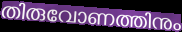
തിരുവോണത്തിനും